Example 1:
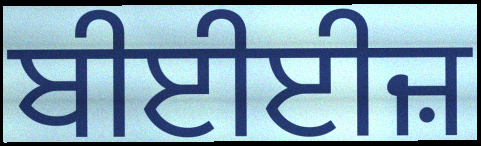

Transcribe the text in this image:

ਬੀਈਈਜ਼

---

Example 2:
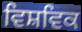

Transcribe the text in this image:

ਵਿਸ਼ਵਿਕ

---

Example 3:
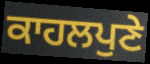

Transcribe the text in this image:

ਕਾਹਲਪੁਣੇ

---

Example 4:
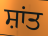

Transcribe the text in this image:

ਸ਼ਾਂਤ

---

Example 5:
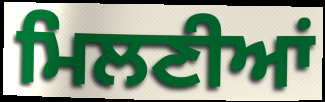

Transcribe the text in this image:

ਮਿਲਣੀਆਂ